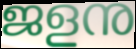
ജളനു